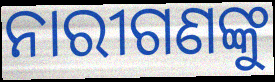
ନାରୀଗଣଙ୍କୁ